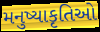
મનુષ્યાકૃતિઓ